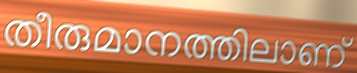
തീരുമാനത്തിലാണ്